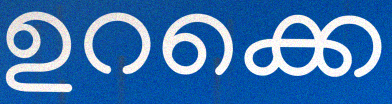
ഉറക്കെ